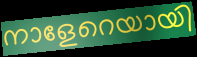
നാളേറെയായി